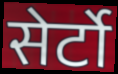
सेर्टो